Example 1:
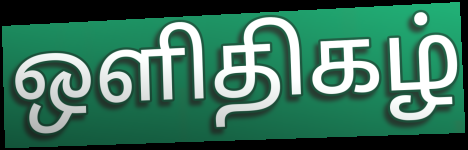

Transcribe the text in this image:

ஒளிதிகழ்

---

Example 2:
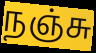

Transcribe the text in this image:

நஞ்சு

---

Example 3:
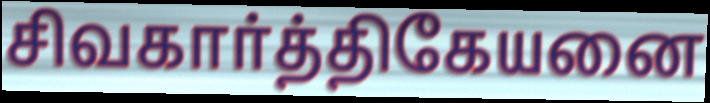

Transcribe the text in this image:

சிவகார்த்திகேயனை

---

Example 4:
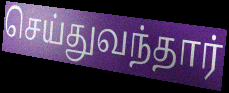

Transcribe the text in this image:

செய்துவந்தார்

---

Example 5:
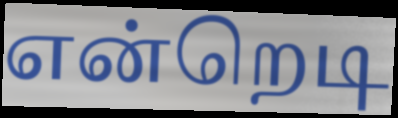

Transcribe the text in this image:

என்றெடி